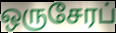
ஒருசேரப்